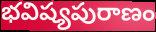
భవిష్యపురాణం